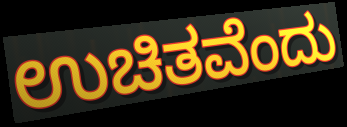
ಉಚಿತವೆಂದು